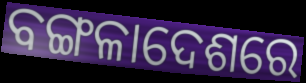
ବଙ୍ଗଳାଦେଶରେ